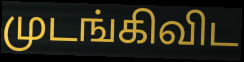
முடங்கிவிட